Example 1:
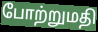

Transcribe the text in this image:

போற்றுமதி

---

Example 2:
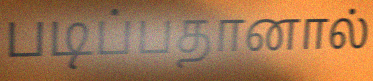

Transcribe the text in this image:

படிப்பதானால்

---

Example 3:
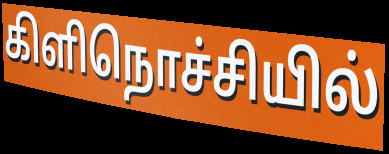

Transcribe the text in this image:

கிளிநொச்சியில்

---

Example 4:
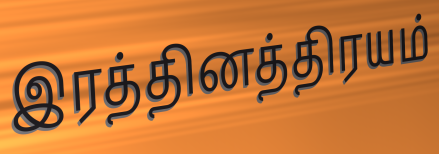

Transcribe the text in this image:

இரத்தினத்திரயம்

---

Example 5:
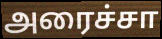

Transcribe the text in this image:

அரைச்சா